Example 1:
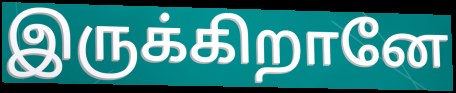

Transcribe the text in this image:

இருக்கிறானே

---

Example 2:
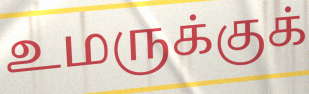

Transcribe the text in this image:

உமருக்குக்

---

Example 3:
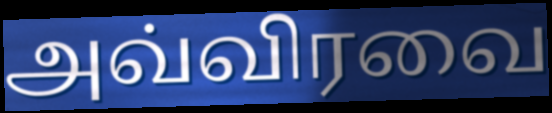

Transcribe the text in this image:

அவ்விரவை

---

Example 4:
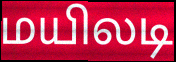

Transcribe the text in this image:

மயிலடி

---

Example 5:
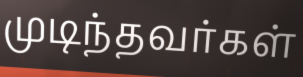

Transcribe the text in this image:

முடிந்தவர்கள்